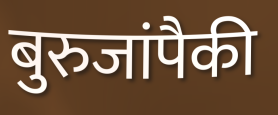
बुरुजांपैकी